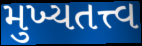
મુખ્યતત્ત્વ